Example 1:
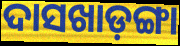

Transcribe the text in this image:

ଦାସଖାଡ଼ଙ୍ଗା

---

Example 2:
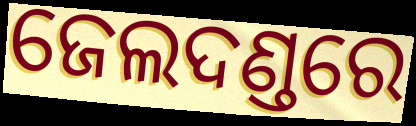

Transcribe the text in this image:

ଜେଲଦଣ୍ଡରେ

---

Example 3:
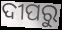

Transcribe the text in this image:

ଦୀପରୁ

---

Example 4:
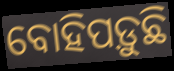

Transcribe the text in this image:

ବୋହିପଡ଼ୁଛି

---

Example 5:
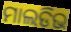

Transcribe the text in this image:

ମାଲଡିଭ